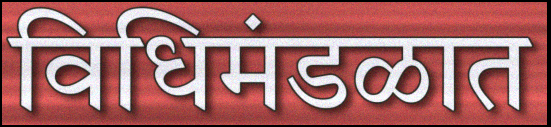
विधिमंडळात